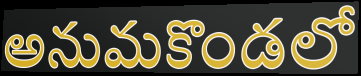
అనుమకొండలో